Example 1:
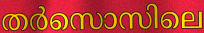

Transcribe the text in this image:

തർസൊസിലെ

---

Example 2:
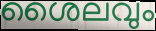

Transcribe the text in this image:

ശൈലവും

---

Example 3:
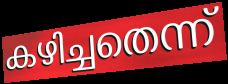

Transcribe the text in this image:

കഴിച്ചതെന്ന്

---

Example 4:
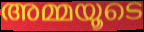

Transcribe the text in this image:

അമ്മയൂടെ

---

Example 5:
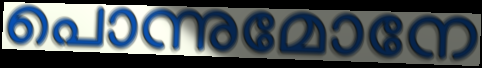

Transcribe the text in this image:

പൊന്നുമോനേ